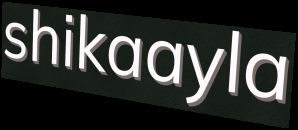
shikaayla